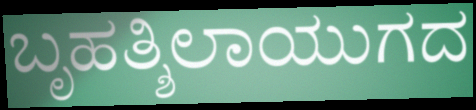
ಬೃಹತ್ಶಿಲಾಯುಗದ